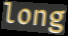
long